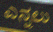
ಎನ್ನಲು